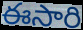
ఈసారి